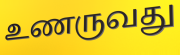
உணருவது